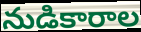
నుడికారాల